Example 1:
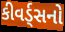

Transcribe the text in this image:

કીવર્ડ્સનો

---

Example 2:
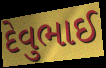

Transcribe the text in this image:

દેવુભાઈ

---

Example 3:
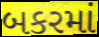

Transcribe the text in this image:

બકરમાં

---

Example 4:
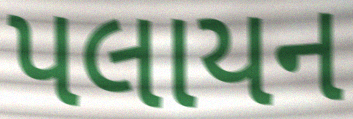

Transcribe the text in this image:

પલાયન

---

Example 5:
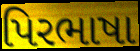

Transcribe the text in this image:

પિરભાષા